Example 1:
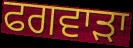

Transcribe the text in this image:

ਫਗਵਾੜਾ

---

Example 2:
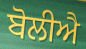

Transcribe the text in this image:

ਬੋਲੀਐ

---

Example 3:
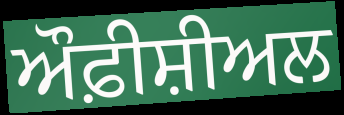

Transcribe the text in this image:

ਔਫ਼ੀਸ਼ੀਅਲ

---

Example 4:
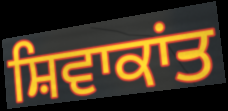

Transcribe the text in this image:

ਸ਼ਿਵਾਕਾਂਤ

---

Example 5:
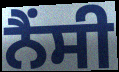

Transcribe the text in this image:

ਨੈਂਸੀ